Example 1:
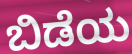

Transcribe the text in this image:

ಬಿಡೆಯ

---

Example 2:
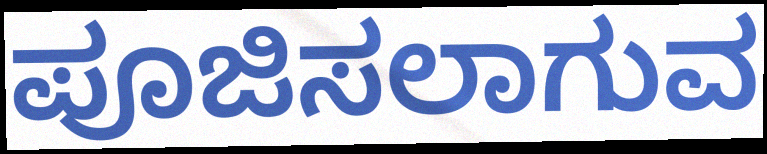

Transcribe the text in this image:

ಪೂಜಿಸಲಾಗುವ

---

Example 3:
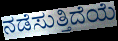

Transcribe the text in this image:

ನಡೆಸುತ್ತಿದೆಯೆ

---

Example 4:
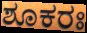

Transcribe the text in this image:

ಶೂಕರಃ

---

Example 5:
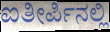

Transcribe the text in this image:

ಐತೀರ್ಪಿನಲ್ಲಿ